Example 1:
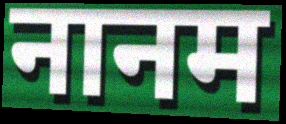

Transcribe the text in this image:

नानम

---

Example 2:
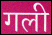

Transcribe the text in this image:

गली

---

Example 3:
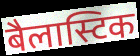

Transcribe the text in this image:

बैलास्टिक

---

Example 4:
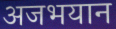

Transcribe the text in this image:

अजभयान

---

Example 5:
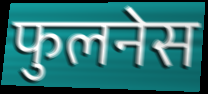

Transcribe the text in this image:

फुलनेस